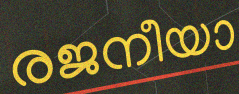
രജനീയാ